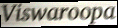
Viswaroopa